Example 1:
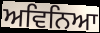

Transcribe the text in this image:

ਅਵਿਨਿਆ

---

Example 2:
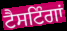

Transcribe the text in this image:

ਟੈਸਟਿੰਗਾਂ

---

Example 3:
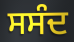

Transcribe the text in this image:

ਸਸੰਦ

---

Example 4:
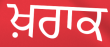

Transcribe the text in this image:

ਖ਼ਰਾਕ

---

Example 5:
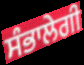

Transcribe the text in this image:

ਸੰਭਾਲੇਗੀ